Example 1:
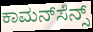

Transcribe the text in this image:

ಕಾಮನ್‌ಸೆನ್ಸ್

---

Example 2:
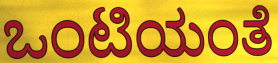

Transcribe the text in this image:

ಒಂಟಿಯಂತೆ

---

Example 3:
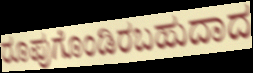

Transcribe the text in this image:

ರೂಪುಗೊಂಡಿರಬಹುದಾದ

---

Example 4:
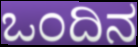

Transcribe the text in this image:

ಒಂದಿನ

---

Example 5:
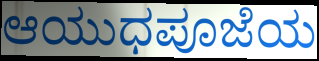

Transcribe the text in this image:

ಆಯುಧಪೂಜೆಯ